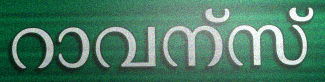
റാവന്സ്